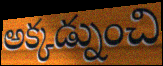
అక్కడ్నుంచి